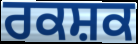
ਰਕਸ਼ਕ